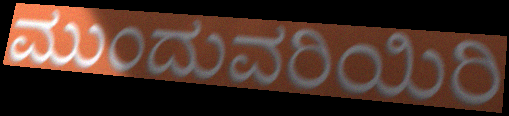
ಮುಂದುವರಿಯಿರಿ